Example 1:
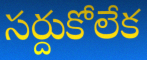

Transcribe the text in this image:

సర్దుకోలేక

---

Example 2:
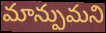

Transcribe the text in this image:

మాన్పుమని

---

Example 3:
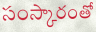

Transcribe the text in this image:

సంస్కారంతో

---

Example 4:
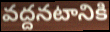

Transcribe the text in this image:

వద్దనటానికి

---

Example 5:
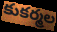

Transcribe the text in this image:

కుకర్మల